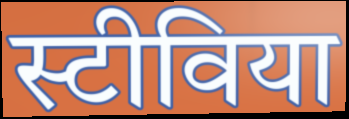
स्‍टीविया